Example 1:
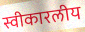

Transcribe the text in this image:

स्वीकारलीय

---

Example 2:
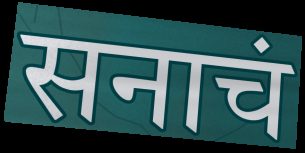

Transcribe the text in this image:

सनाचं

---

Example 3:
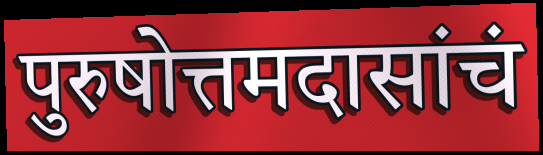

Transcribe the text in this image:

पुरुषोत्तमदासांचं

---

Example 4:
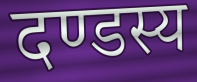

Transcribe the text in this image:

दण्डस्य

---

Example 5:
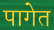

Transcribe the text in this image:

पागेत